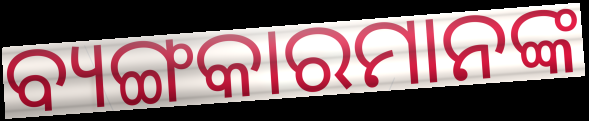
ବ୍ୟଙ୍ଗକାରମାନଙ୍କ